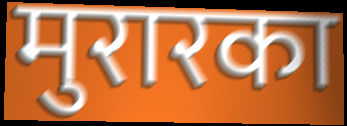
मुरारका